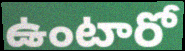
ఉంటారో